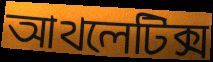
আথলেটিক্স